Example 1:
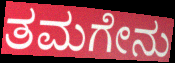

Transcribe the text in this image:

ತಮಗೇನು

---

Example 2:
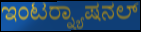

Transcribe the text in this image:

ಇಂಟರ್‍ನ್ಯಾಷನಲ್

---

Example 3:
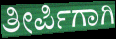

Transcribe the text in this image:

ತೀರ್ಪಿಗಾಗಿ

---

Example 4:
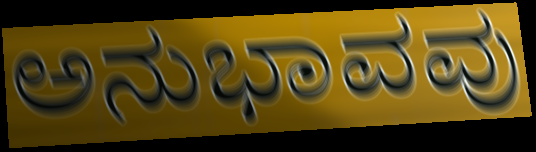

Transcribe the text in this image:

ಅನುಭಾವವು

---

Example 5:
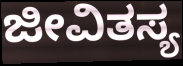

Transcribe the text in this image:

ಜೀವಿತಸ್ಯ